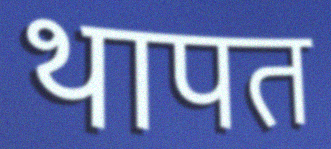
थापत